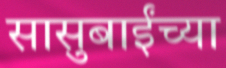
सासुबाईंच्या